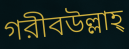
গরীবউল্লাহ্